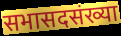
सभासदसंख्या